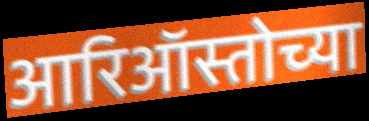
आरिऑस्तोच्या